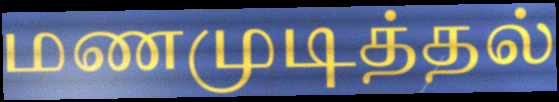
மணமுடித்தல்